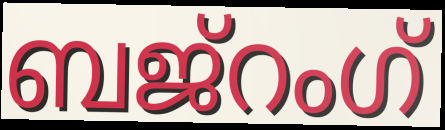
ബജ്റംഗ്